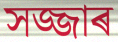
সজ্জাৰ